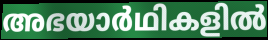
അഭയാർഥികളിൽ